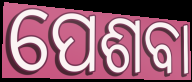
ପେଶବା